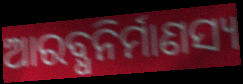
ଆରବ୍ଧନିର୍ମାଣସ୍ୟ